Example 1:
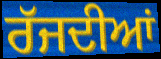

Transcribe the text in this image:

ਰੱਜਦੀਆਂ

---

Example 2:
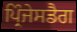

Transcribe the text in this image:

ਪ੍ਰਿੰਜੇਸਡੈਗ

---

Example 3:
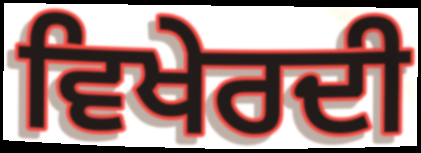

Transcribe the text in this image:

ਵਿਖੇਰਦੀ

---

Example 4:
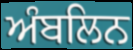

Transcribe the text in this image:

ਅੰਬਲਿਨ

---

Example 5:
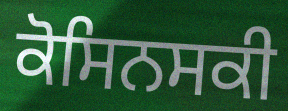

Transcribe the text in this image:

ਕੋਸਿਨਸਕੀ